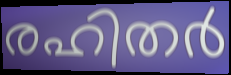
രഹിതർ